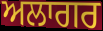
ਅਲਾਗਰ